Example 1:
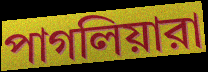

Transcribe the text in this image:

পাগলিয়ারা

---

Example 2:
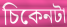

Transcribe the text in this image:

চিকেনটা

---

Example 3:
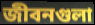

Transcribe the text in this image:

জীবনগুলা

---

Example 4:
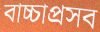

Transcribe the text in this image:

বাচ্চাপ্রসব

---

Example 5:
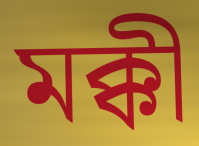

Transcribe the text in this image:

মক্কী